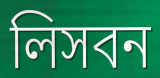
লিসবন